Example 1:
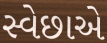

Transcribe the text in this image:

સ્વેછાએ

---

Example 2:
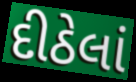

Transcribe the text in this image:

દીઠેલાં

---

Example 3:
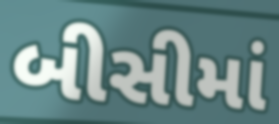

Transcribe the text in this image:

બીસીમાં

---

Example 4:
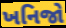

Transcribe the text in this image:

ખનિજો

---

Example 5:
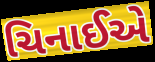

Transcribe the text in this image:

ચિનાઈએ